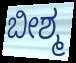
ಬೀಶ್ಮ